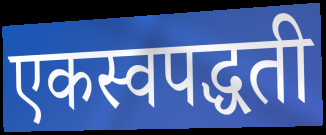
एकस्वपद्धती